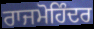
ਰਾਜਮੋਹਿੰਦਰ